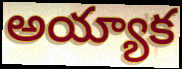
అయ్యాక